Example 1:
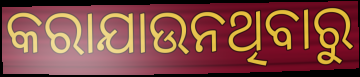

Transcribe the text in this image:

କରାଯାଉନଥିବାରୁ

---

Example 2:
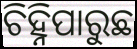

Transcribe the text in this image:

ଚିହ୍ନିପାରୁଛ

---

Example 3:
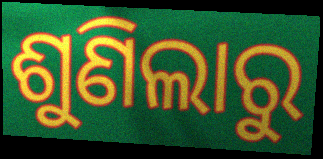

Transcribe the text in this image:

ଶୁଣିଲାରୁ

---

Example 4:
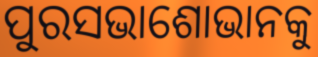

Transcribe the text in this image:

ପୁରସଭାଶୋଭାନକୁ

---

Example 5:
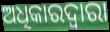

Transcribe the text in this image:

ଅଧିକାରଦ୍ୱାରା